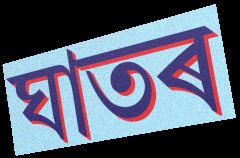
ঘাতৰ